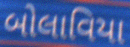
બોલાવિયા